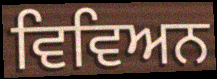
ਵਿਵਿਅਨ